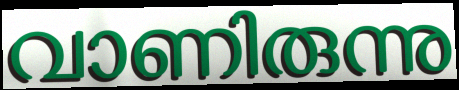
വാണിരുന്നു